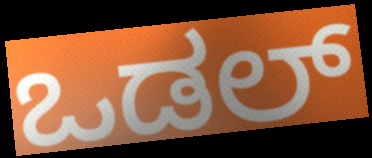
ಒಡಲ್